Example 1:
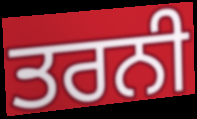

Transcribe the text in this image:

ਤਰਨੀ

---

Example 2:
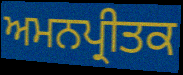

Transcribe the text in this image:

ਅਮਨਪ੍ਰੀਤਕ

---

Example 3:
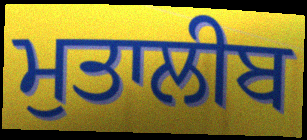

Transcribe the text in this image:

ਮੁਤਾਲੀਬ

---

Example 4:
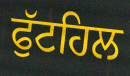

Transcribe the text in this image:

ਫੁੱਟਹਿਲ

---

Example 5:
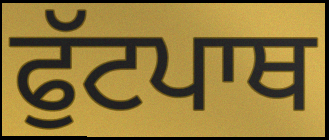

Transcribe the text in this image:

ਫੁੱਟਪਾਥ